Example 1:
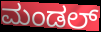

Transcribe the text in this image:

ಮಂಡಲ್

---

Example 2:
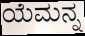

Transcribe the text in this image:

ಯೆಮನ್ನ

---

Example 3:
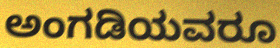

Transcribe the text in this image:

ಅಂಗಡಿಯವರೂ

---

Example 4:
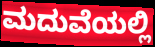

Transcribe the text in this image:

ಮದುವೆಯಲ್ಲಿ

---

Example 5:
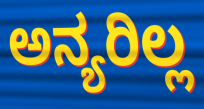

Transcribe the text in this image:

ಅನ್ಯರಿಲ್ಲ